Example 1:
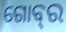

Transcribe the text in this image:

ଗୋବ୍‌ର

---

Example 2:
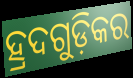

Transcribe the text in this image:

ହ୍ରଦଗୁଡ଼ିକର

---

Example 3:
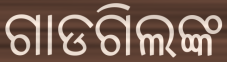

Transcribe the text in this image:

ଗାଡଗିଲଙ୍କ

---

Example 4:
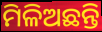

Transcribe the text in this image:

ମିଳିଅଛନ୍ତି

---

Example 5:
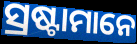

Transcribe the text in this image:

ସ୍ରଷ୍ଟାମାନେ